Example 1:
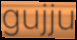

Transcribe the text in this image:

gujju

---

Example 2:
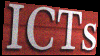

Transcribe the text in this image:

ICTs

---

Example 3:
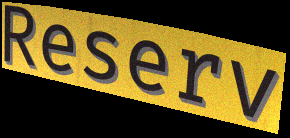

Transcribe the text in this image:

Reserv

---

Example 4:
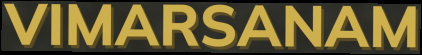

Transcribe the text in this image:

VIMARSANAM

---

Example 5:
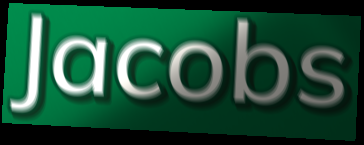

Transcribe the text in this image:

Jacobs